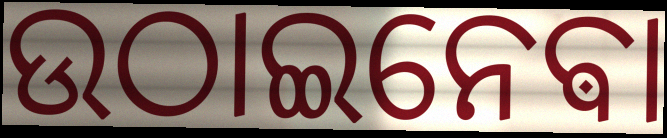
ଉଠାଇନେଵା